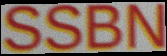
SSBN